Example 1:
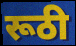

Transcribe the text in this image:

रूठी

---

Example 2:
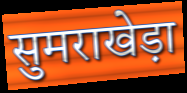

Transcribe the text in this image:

सुमराखेड़ा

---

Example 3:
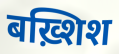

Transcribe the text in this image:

बख़्शिश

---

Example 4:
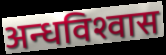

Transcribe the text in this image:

अन्धविश्वास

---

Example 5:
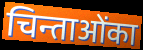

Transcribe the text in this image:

चिन्ताओंका